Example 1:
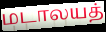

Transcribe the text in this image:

மடாலயத்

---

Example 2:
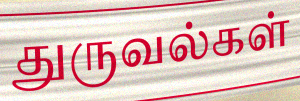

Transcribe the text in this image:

துருவல்கள்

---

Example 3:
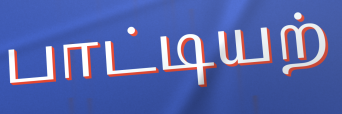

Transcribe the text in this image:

பாட்டியற்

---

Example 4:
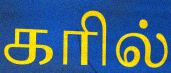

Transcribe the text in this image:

கரில்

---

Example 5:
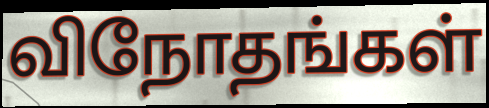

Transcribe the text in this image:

விநோதங்கள்